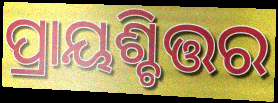
ପ୍ରାୟଶ୍ଚିତ୍ତର